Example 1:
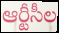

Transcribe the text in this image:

ఆర్టీసీల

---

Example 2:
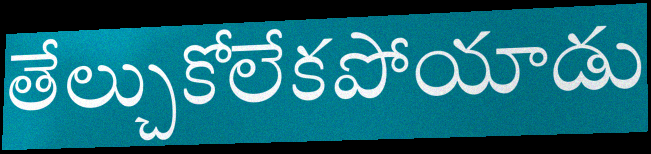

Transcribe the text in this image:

తేల్చుకోలేకపోయాడు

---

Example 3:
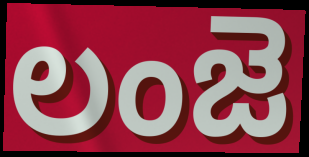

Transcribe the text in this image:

లంజె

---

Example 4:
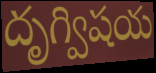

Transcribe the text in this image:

దృగ్విషయ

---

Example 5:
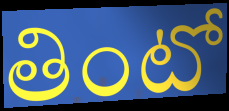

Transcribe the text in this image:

తింటో